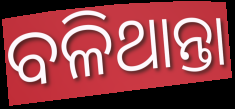
ବଳିଥାନ୍ତା